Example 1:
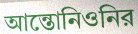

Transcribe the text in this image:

আন্তোনিওনির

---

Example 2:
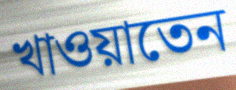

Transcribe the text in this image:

খাওয়াতেন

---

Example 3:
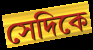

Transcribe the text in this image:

সেদিকে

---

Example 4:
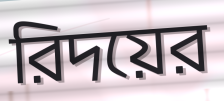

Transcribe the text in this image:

রিদয়ের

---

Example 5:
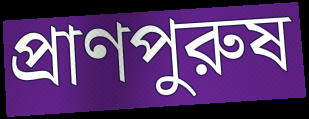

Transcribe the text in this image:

প্রাণপুরুষ